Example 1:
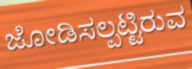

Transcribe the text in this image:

ಜೋಡಿಸಲ್ಪಟ್ಟಿರುವ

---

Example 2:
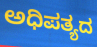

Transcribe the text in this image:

ಅಧಿಪತ್ಯದ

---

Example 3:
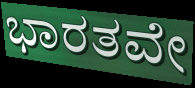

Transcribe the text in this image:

ಭಾರತವೇ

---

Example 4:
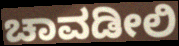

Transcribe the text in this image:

ಚಾವಡೀಲಿ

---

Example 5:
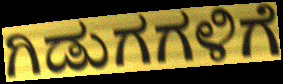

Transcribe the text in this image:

ಗಿಡುಗಗಳಿಗೆ